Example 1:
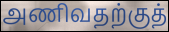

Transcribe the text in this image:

அணிவதற்குத்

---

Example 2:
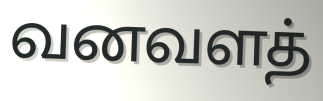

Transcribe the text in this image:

வனவளத்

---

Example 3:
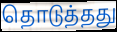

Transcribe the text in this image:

தொடுத்தது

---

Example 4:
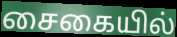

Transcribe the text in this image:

சைகையில்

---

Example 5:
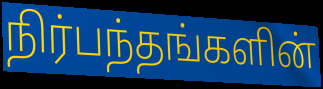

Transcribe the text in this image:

நிர்பந்தங்களின்